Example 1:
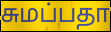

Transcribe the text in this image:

சுமப்பதா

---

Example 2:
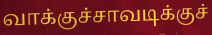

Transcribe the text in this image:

வாக்குச்சாவடிக்குச்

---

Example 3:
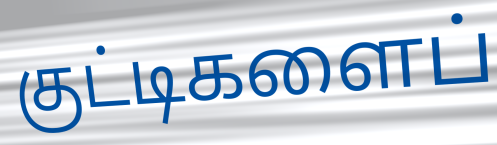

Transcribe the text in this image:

குட்டிகளைப்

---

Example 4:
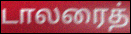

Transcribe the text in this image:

டாலரைத்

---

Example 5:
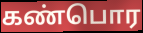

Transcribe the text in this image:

கண்பொர